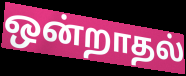
ஒன்றாதல்